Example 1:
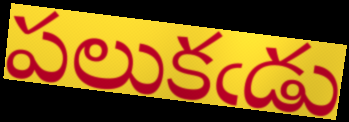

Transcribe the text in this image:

పలుకఁడు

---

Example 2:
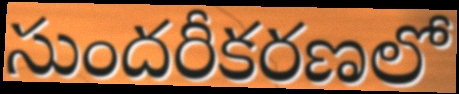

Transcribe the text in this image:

సుందరీకరణలో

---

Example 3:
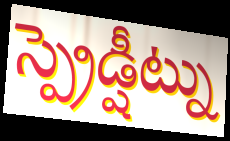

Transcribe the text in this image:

స్ప్రెడ్షీట్ను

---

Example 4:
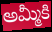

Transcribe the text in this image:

అమ్మీకి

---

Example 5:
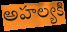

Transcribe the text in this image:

అహల్యకి